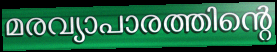
മരവ്യാപാരത്തിന്റെ